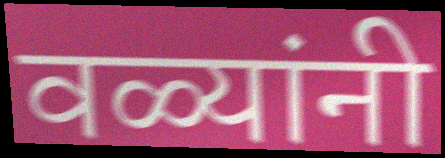
वळ्यांनी